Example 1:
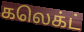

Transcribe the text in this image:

கலெக்ட்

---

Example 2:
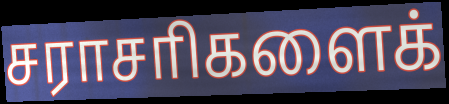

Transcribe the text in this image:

சராசரிகளைக்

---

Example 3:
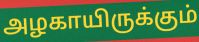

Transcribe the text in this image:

அழகாயிருக்கும்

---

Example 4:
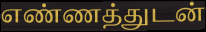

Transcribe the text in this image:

எண்ணத்துடன்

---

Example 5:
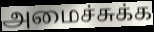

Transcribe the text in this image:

அமைச்சுக்க